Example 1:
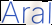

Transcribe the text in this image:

Aral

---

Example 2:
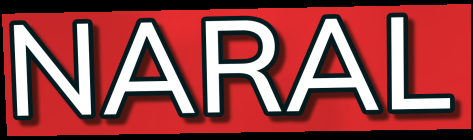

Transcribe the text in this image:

NARAL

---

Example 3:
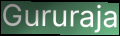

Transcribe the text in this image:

Gururaja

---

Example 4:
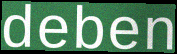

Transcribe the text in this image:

deben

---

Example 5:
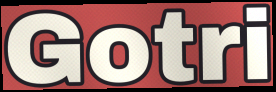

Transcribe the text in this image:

Gotri